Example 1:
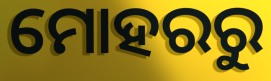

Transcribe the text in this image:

ମୋହରରୁ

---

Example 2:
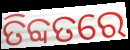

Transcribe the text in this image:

ତିବ୍ଦତରେ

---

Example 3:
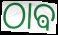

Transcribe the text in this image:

ଠାଵ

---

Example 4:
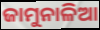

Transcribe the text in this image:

ଜାମୁନାଳିଆ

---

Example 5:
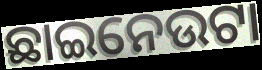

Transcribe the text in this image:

ଛାଇନେଉଟା